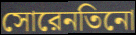
সোরেনতিনো